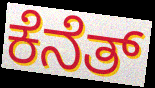
ಕೆನೆತ್